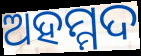
ଅହମ୍ମଦ